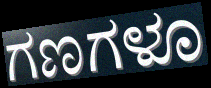
ಗಣಗಳೂ